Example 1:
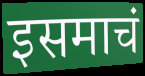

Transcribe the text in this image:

इसमाचं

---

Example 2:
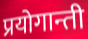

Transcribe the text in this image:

प्रयोगान्ती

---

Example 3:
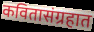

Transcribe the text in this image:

कवितासंग्रहात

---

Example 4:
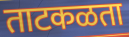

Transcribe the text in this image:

ताटकळता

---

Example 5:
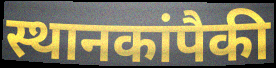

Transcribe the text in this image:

स्थानकांपैकी